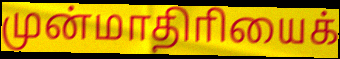
முன்மாதிரியைக்